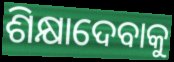
ଶିକ୍ଷାଦେବାକୁ